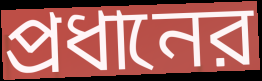
প্রধানের